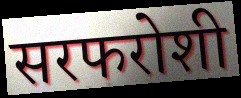
सरफरोशी